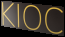
KIOC